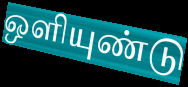
ஒளியுண்டு